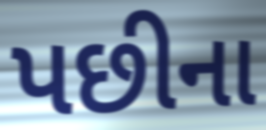
પછીના